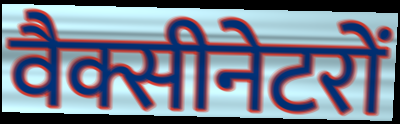
वैक्सीनेटरों